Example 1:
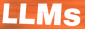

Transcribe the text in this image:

LLMs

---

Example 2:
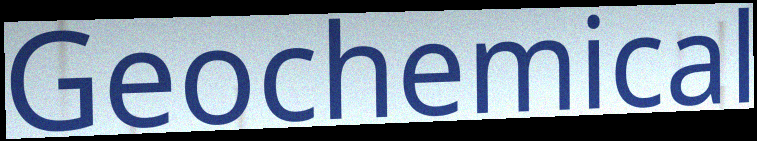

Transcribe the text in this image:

Geochemical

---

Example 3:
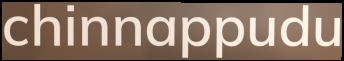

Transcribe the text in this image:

chinnappudu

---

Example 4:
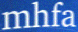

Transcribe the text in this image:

mhfa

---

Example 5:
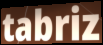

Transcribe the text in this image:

tabriz